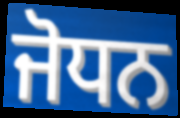
ਜੋਧਨ